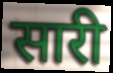
सारी